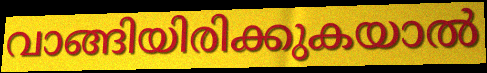
വാങ്ങിയിരിക്കുകയാൽ